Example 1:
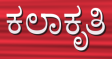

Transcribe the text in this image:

ಕಲಾಕೃತಿ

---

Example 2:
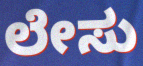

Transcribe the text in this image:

ಲೇಸು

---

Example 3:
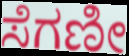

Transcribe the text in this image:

ಸೆಗಣೀ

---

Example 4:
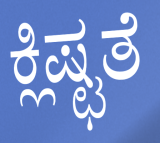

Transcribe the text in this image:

ಕ್ಲಿಷ್ಟತೆ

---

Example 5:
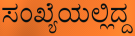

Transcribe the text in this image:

ಸಂಖ್ಯೆಯಲ್ಲಿದ್ದ